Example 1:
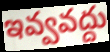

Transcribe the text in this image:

ఇవ్వవద్దు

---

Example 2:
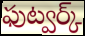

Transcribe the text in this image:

ఫుట్వర్క్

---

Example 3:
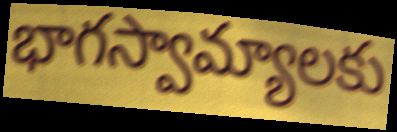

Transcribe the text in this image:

భాగస్వామ్యాలకు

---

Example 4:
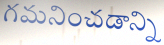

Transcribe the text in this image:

గమనించడాన్ని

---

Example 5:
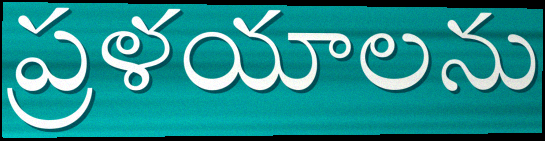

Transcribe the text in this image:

ప్రళయాలను